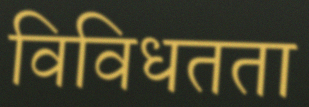
विविधतता